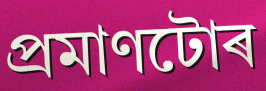
প্ৰমাণটোৰ